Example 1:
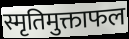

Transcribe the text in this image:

स्मृतिमुक्ताफल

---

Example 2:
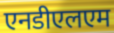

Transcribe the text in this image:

एनडीएलएम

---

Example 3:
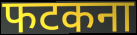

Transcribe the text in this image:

फटकना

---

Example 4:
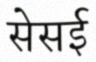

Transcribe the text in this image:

सेसई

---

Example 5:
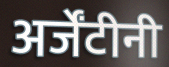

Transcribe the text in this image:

अर्जेंटीनी